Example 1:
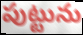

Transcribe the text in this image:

పుట్టును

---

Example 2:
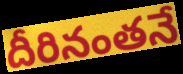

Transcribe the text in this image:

దీరినంతనే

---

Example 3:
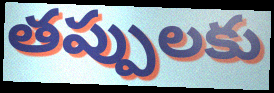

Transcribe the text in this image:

తప్పులకు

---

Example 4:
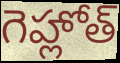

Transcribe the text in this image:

గెహ్లోత్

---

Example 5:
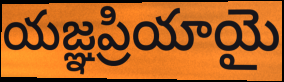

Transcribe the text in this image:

యజ్ఞప్రియాయై